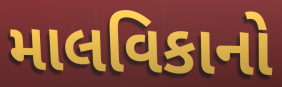
માલવિકાનો